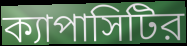
ক্যাপাসিটির